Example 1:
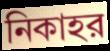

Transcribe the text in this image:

নিকাহর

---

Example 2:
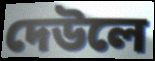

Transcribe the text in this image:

দেউলে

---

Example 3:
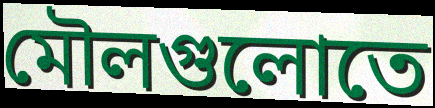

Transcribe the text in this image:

মৌলগুলোতে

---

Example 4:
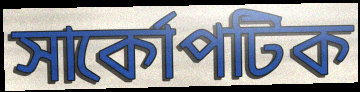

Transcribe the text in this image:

সার্কোপটিক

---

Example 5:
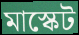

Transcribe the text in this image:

মাস্কেট